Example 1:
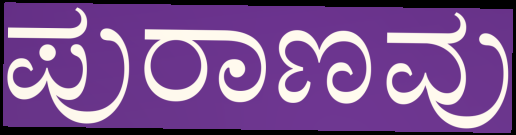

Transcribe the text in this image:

ಪುರಾಣವು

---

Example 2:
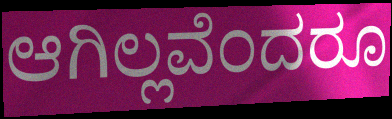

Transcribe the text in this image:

ಆಗಿಲ್ಲವೆಂದರೂ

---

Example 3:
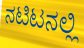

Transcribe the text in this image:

ನಟಿಟನಲ್ಲಿ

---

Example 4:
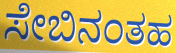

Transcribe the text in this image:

ಸೇಬಿನಂತಹ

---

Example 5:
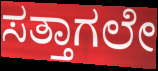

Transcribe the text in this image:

ಸತ್ತಾಗಲೇ